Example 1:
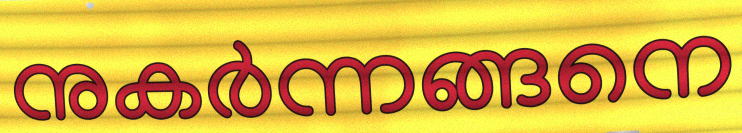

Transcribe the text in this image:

നുകർന്നങ്ങനെ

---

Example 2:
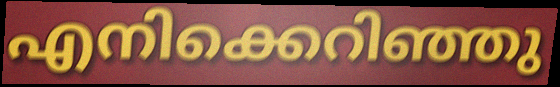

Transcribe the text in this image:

എനിക്കെറിഞ്ഞു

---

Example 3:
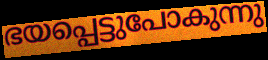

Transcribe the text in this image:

ഭയപ്പെട്ടുപോകുന്നു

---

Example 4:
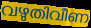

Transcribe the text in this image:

വഴുതിവീണ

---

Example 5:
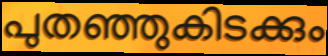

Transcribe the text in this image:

പുതഞ്ഞുകിടക്കും